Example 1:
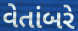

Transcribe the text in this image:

વેતાંબરે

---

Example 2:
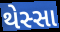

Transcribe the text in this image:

થેસ્સા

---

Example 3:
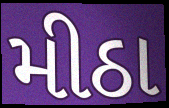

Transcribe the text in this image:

મીઠા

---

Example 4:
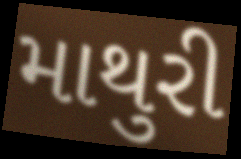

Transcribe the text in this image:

માથુરી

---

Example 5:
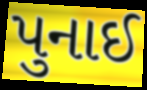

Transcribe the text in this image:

પુનાઈ